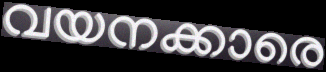
വയനക്കാരെ